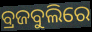
ବ୍ରଜବୁଲିରେ